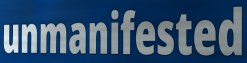
unmanifested